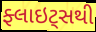
ફ્લાઇટ્સથી